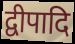
द्वीपादि